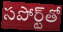
సపోర్ట్‌తో